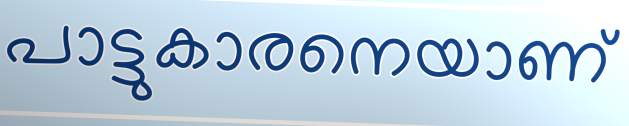
പാട്ടുകാരനെയാണ്